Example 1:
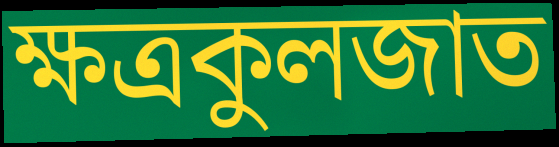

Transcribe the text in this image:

ক্ষত্রকুলজাত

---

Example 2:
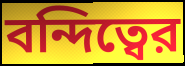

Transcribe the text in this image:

বন্দিত্বের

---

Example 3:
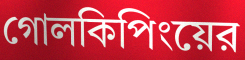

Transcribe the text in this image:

গোলকিপিংয়ের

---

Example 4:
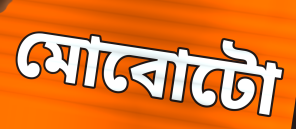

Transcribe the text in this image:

মোবোটো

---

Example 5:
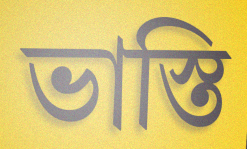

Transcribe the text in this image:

ভাস্তি